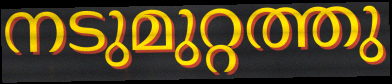
നടുമുറ്റത്തു